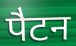
पैटन